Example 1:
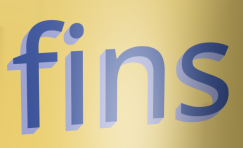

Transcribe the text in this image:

fins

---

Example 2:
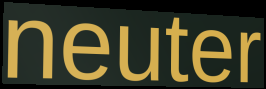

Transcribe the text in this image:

neuter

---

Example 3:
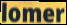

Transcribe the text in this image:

lomer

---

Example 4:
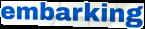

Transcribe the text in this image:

embarking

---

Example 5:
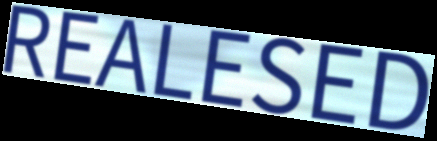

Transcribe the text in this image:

REALESED